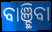
ବାଞ୍ଛିବା